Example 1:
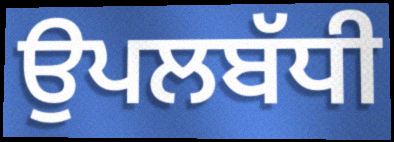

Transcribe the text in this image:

ਉਪਲਬੱਧੀ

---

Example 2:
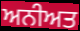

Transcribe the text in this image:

ਅਨੀਅਤ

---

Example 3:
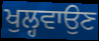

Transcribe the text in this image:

ਖੁਲ੍ਹਵਾਉਣ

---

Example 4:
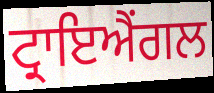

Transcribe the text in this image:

ਟ੍ਰਾਇਐਂਗਲ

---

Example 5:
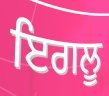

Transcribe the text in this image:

ਇਗਲੂ